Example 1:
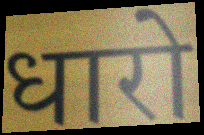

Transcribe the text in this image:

धारो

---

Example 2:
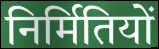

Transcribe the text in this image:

निर्मितियों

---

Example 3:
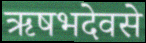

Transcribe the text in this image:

ऋषभदेवसे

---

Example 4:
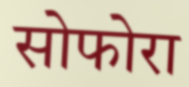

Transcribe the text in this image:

सोफोरा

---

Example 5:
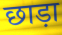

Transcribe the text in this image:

छाड़ा